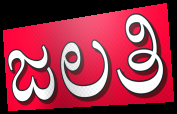
ಜಲತಿ